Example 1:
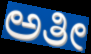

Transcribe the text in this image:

ಅತೀ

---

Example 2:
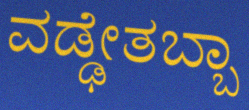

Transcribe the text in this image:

ವಡ್ಢೇತಬ್ಬಾ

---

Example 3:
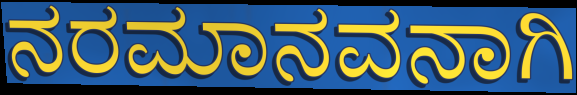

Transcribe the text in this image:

ನರಮಾನವನಾಗಿ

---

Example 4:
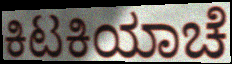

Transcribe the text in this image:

ಕಿಟಕಿಯಾಚೆ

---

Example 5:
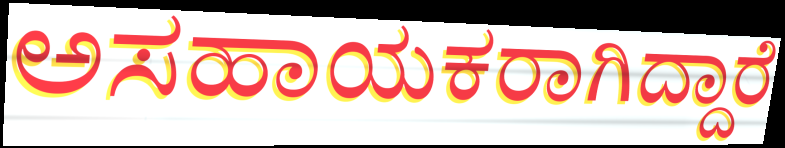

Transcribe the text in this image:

ಅಸಹಾಯಕರಾಗಿದ್ದಾರೆ